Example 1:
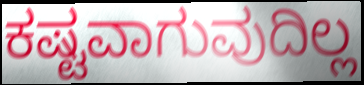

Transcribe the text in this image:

ಕಷ್ಟವಾಗುವುದಿಲ್ಲ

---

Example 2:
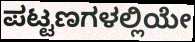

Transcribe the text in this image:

ಪಟ್ಟಣಗಳಲ್ಲಿಯೇ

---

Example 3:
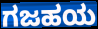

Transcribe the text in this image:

ಗಜಹಯ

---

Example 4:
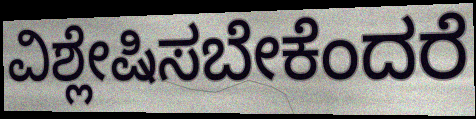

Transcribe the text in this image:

ವಿಶ್ಲೇಷಿಸಬೇಕೆಂದರೆ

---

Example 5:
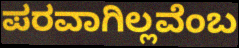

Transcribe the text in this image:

ಪರವಾಗಿಲ್ಲವೆಂಬ